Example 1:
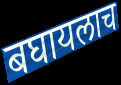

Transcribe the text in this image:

बघायलाच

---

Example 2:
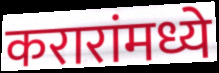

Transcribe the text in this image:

करारांमध्ये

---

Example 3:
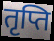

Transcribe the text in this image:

तृप्ति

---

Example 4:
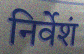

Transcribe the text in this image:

निर्वेशं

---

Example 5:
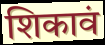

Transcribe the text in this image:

शिकावं